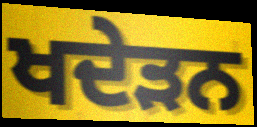
ਖਦੇੜਨ